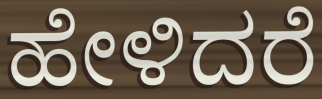
ಹೇಳಿದರೆ